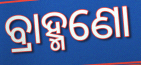
ବ୍ରାହ୍ମଣୋ